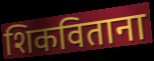
शिकविताना